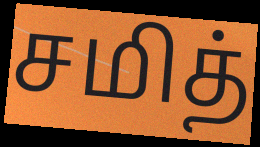
சமித்